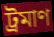
ট্রমাণ